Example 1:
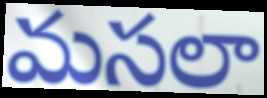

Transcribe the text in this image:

మసలా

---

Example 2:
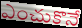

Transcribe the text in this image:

ఎంచుకొనే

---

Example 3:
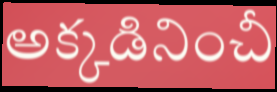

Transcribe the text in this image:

అక్కడినించీ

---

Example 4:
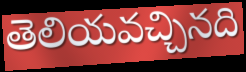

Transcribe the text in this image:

తెలియవచ్చినది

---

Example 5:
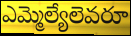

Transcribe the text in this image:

ఎమ్మెల్యేలెవరూ